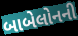
બાબેલોનની